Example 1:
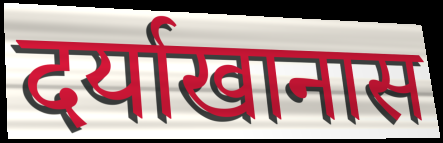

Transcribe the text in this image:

दर्याखानास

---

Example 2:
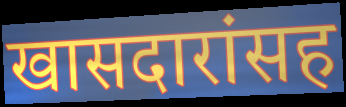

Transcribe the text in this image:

खासदारांसह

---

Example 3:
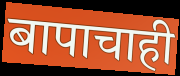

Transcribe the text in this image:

बापाचाही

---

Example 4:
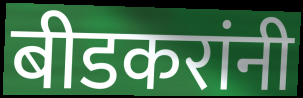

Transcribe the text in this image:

बीडकरांनी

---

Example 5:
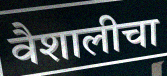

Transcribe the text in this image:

वैशालीचा